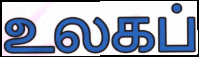
உலகப்